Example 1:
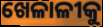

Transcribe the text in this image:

ଖେଳାଳୀକୁ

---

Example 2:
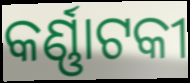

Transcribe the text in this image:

କର୍ଣ୍ଣାଟକୀ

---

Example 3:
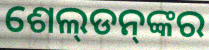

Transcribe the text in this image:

ଶେଲ୍‌ଡନ୍‌ଙ୍କର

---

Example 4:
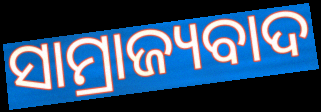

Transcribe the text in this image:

ସାମ୍ରାଜ୍ୟବାଦ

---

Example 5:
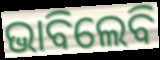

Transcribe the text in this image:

ଭାବିଲେବି